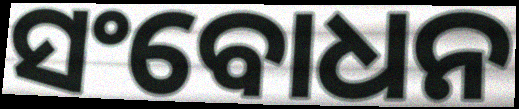
ସଂବୋଧନ